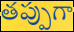
తప్పుగా